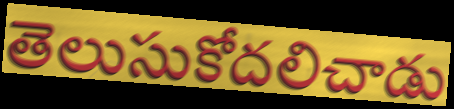
తెలుసుకోదలిచాడు